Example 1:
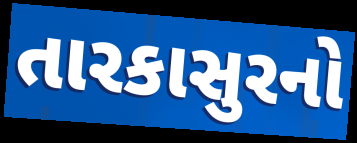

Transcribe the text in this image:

તારકાસુરનો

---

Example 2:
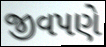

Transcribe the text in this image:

જીવપણે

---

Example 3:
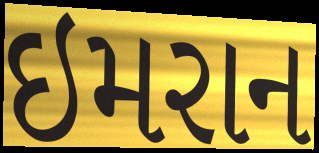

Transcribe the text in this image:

ઇમરાન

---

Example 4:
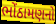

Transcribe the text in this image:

ભોંઠામણનો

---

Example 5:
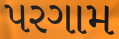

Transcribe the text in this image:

પરગામ